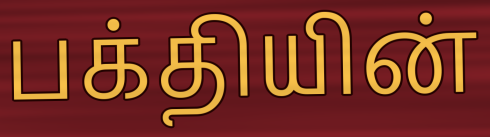
பக்தியின்